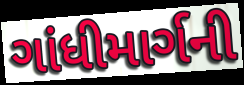
ગાંધીમાર્ગની